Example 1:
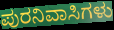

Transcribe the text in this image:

ಪುರನಿವಾಸಿಗಳು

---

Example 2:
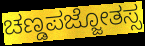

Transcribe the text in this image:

ಚಣ್ಡಪಜ್ಜೋತಸ್ಸ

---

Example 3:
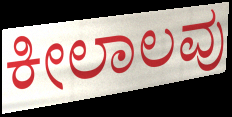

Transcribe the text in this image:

ಕೀಲಾಲವು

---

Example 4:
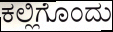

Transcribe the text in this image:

ಕಲ್ಲಿಗೊಂದು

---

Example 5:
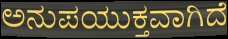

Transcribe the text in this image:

ಅನುಪಯುಕ್ತವಾಗಿದೆ